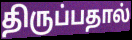
திருப்பதால்